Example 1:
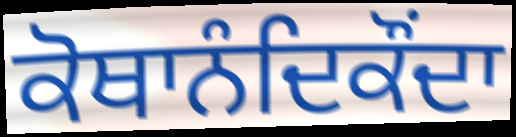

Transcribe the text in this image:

ਕੋਥਾਨੰਦਿਕੌਂਦਾ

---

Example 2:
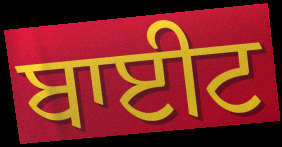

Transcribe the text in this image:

ਬਾਈਟ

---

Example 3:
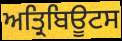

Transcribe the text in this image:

ਅਤ੍ਰਿਬਿਊਟਸ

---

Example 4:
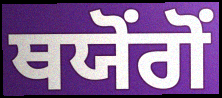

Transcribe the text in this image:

ਥਯੋਂਗੋਂ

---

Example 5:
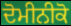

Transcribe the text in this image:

ਦੋਮੀਨੀਕੋ